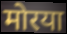
मोरया